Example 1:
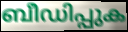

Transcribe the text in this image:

ബീഡിപ്പുക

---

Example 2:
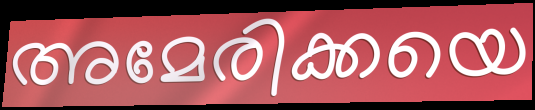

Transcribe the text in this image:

അമേരിക്കയെ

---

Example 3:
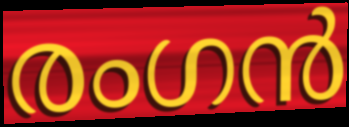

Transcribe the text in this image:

രംഗൻ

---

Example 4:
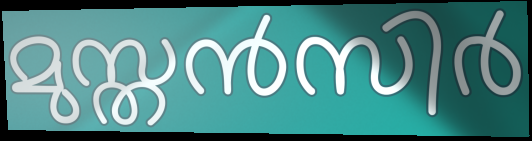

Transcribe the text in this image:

മുസ്തൻസിർ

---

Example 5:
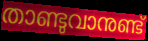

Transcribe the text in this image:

താണ്ടുവാനുണ്ട്